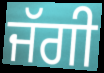
ਜੱਗੀ